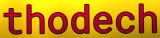
thodech